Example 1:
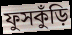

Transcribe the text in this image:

ফুসকুঁড়ি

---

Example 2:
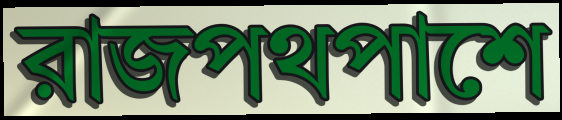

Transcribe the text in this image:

রাজপথপাশে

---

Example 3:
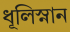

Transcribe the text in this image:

ধূলিস্নান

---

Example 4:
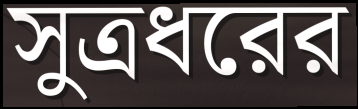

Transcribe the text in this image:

সুত্রধরের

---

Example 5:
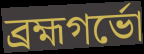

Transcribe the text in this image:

ব্রহ্মগর্ভো